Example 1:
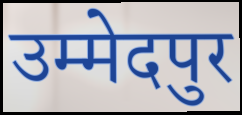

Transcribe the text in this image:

उम्मेदपुर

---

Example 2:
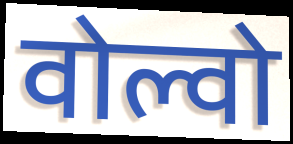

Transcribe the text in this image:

वोल्वो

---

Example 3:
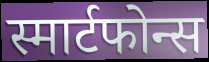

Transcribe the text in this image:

स्मार्टफोन्स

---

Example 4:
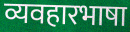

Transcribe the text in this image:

व्यवहारभाषा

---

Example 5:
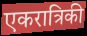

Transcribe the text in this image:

एकरात्रिकी